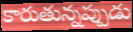
కారుతున్నప్పుడు